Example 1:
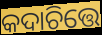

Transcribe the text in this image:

କଦାଚିତ୍ତେ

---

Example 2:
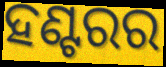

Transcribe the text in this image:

ହଣ୍ଟରର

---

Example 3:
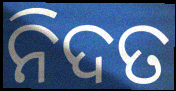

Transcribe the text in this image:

ନିଦତ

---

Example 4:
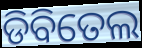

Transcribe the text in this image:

ଡିବିତେଲ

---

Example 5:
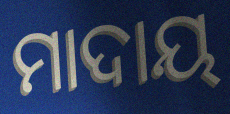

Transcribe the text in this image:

ମାଦାୟ